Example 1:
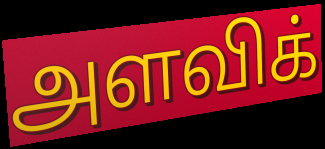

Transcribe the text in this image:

அளவிக்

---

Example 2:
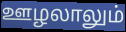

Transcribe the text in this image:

ஊழலாலும்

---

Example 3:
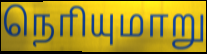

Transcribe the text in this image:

நெரியுமாறு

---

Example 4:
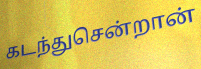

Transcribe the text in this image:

கடந்துசென்றான்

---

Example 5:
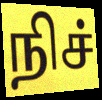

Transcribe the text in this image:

நிச்